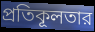
প্রতিকূলতার